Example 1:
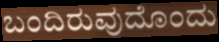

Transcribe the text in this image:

ಬಂದಿರುವುದೊಂದು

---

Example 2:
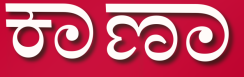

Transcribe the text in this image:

ಕಾಣಾ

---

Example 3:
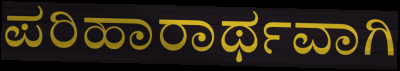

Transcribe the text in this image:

ಪರಿಹಾರಾರ್ಥವಾಗಿ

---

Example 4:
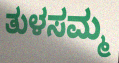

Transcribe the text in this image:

ತುಳಸಮ್ಮ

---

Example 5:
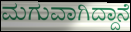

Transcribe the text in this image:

ಮಗುವಾಗಿದ್ದಾನೆ